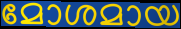
മോശമായ